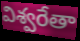
విశ్వరేతా